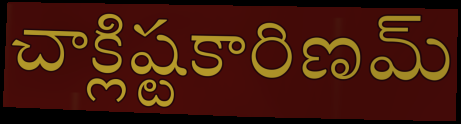
చాక్లిష్టకారిణమ్